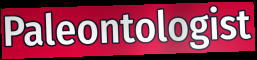
Paleontologist